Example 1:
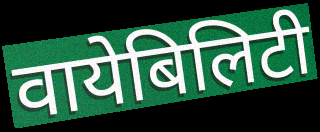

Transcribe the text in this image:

वायेबिलिटी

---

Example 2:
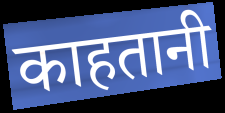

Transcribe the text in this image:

काहतानी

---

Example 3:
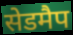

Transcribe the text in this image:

सेडमैप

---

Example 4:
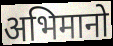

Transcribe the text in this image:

अभिमानो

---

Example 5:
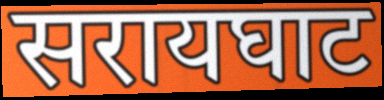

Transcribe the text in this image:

सरायघाट